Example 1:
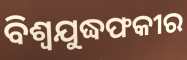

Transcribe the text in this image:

ବିଶ୍ୱଯୁଦ୍ଧଫକୀର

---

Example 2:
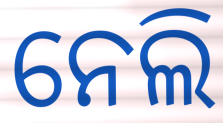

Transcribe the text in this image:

ନେଲି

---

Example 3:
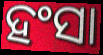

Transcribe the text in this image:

ହଂସା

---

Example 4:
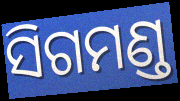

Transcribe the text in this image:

ସିଗମଣ୍ଡ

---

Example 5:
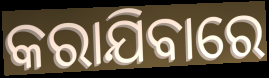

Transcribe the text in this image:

କରାଯିବାରେ